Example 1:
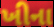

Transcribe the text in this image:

ખીના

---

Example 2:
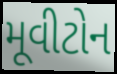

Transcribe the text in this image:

મૂવીટોન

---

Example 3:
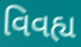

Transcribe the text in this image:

વિવહ્ય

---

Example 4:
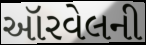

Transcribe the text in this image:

ઑરવેલની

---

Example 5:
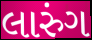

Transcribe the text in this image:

લારુંગ